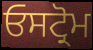
ਓਸਟ੍ਰੋਮ